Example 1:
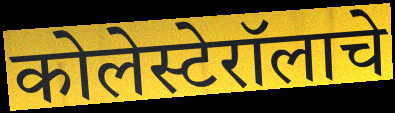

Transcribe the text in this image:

कोलेस्टेरॉलाचे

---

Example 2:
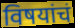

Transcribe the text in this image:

विषयांचं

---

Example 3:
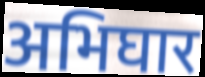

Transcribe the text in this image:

अभिघार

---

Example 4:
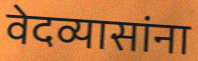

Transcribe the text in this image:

वेदव्यासांना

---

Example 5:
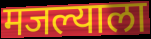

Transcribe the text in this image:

मजल्याला